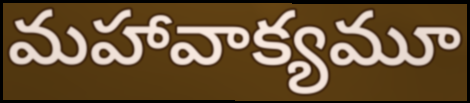
మహావాక్యమూ